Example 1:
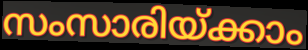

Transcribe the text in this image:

സംസാരിയ്ക്കാം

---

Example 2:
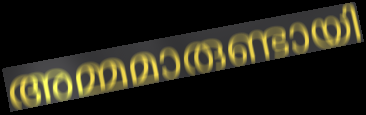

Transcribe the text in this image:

അമ്മമാരുണ്ടായി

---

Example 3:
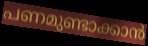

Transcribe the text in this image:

പണമുണ്ടാക്കാൻ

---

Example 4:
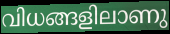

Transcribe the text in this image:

വിധങ്ങളിലാണു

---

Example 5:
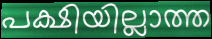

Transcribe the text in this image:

പക്ഷിയില്ലാത്ത